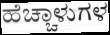
ಹೆಚ್ಚಾಳುಗಳ